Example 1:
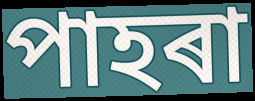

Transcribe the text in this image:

পাহৰা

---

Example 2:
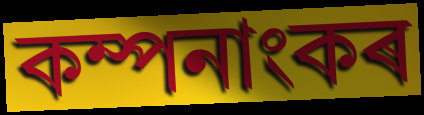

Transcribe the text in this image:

কম্পনাংকৰ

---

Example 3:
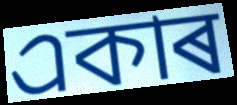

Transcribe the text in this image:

একাৰ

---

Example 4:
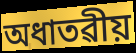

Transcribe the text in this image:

অধাতৱীয়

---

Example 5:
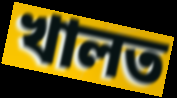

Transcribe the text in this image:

খালত